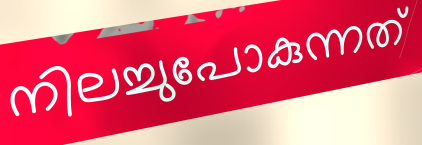
നിലച്ചുപോകുന്നത്